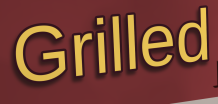
Grilled